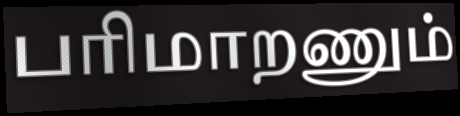
பரிமாறணும்